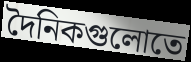
দৈনিকগুলোতে